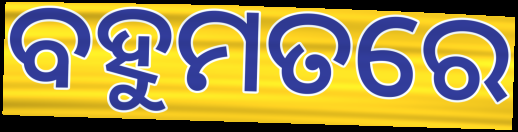
ବହୁମତରେ